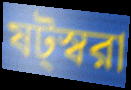
ষট্স্বরা